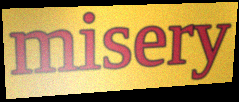
misery